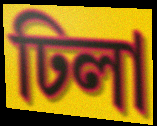
ঢিলা